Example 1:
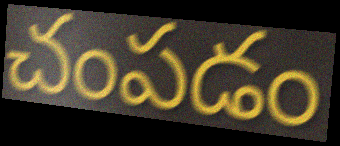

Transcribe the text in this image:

చంపడం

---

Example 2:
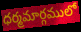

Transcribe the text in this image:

ధర్మమార్గములో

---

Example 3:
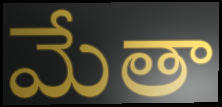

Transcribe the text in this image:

మేతా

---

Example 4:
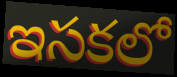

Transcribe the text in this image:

ఇసకలో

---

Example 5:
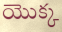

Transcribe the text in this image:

యొక్క